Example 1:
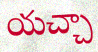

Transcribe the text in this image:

యచ్చా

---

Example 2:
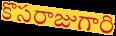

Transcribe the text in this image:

కొసరాజుగారి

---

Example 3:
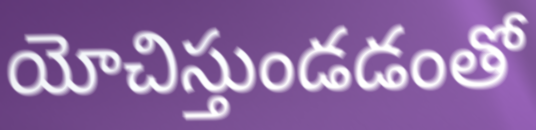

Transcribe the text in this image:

యోచిస్తుండడంతో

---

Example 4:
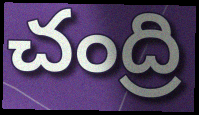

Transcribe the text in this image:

చంద్రి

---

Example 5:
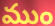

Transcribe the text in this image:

ముం